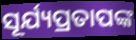
ସୂର୍ଯ୍ୟପ୍ରତାପଙ୍କ